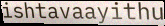
ishtavaayithu